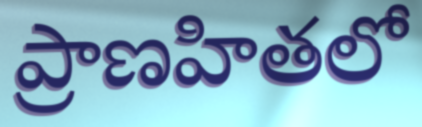
ప్రాణహితలో